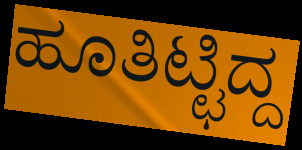
ಹೂತಿಟ್ಟಿದ್ದ